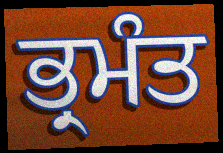
ਭ੍ਰਮੰਤ